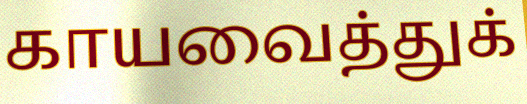
காயவைத்துக்